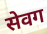
सेवग